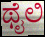
ಥೈಲಿ